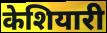
केशियारी